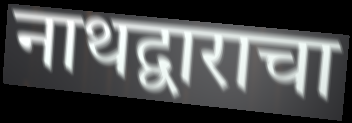
नाथद्वाराचा